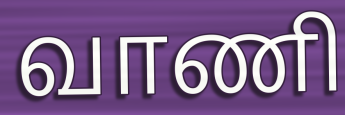
வாணி